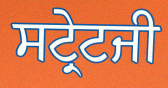
ਸਟ੍ਰੇਟਜੀ